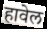
हावेल